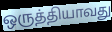
ஒருத்தியாவது